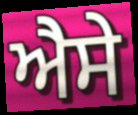
ਐੇਸੇ